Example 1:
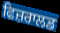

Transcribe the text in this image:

ਫਿਜ਼ਰਾਲਡ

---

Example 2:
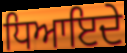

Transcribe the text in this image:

ਧਿਆਇਦੇ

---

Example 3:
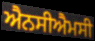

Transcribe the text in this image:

ਐਨਸੀਐਮਸੀ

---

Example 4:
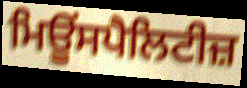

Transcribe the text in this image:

ਮਿਊਂਸਪੈਲਿਟੀਜ਼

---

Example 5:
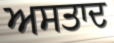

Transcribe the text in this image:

ਅਸਤਾਦ